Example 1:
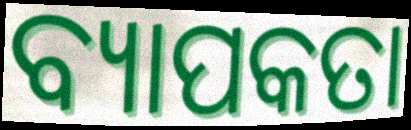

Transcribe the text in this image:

ବ୍ୟାପକତା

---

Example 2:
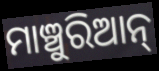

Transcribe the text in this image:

ମାଞ୍ଚୁରିଆନ୍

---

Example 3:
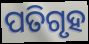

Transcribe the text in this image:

ପତିଗୃହ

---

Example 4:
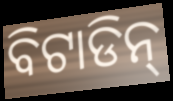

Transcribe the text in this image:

ବିଟାଡିନ୍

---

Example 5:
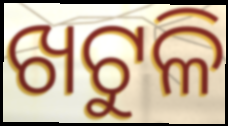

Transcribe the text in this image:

ଖଟୁଳି